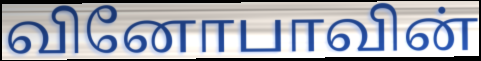
வினோபாவின்